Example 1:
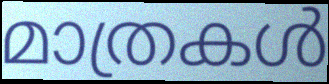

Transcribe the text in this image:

മാത്രകൾ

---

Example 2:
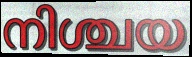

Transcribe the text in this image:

നിശ്ചയ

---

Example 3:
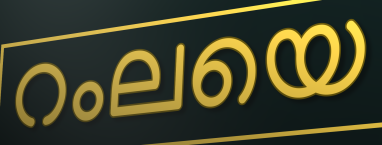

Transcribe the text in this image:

റംലയെ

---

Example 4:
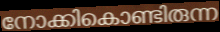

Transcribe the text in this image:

നോക്കികൊണ്ടിരുന്ന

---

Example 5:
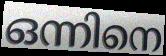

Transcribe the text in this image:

ഒന്നിനെ